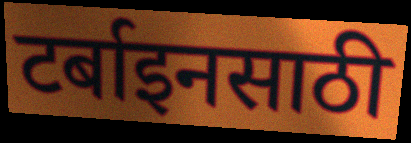
टर्बाइनसाठी